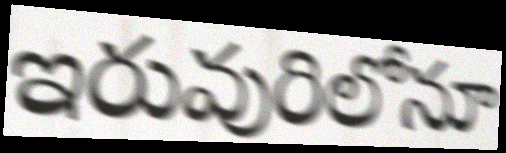
ఇరువురిలోనూ